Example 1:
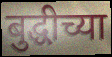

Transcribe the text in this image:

बुद्धीच्या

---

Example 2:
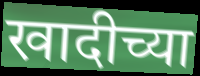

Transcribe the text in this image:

खादीच्या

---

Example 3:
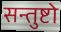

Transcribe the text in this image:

सन्तुष्टो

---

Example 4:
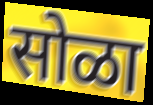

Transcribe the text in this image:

सोळा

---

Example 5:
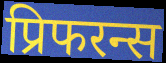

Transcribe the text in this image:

प्रिफरन्स